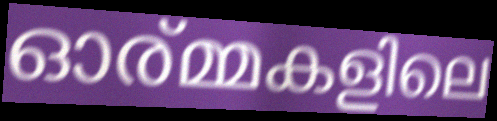
ഓര്മ്മകളിലെ